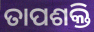
ତାପଶକ୍ତି